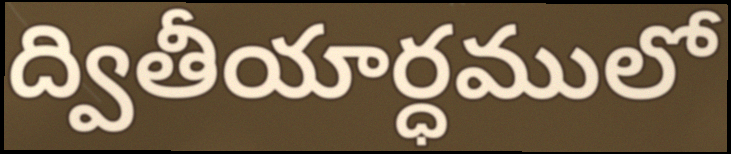
ద్వితీయార్ధములో